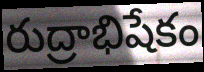
రుద్రాభిషేకం